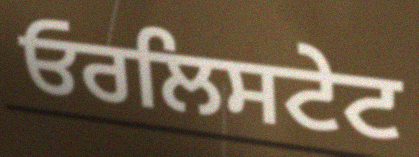
ਓਰਲਿਸਟੇਟ